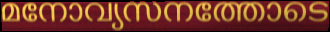
മനോവ്യസനത്തോടെ